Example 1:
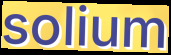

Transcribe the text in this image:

solium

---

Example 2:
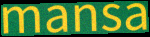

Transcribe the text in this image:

mansa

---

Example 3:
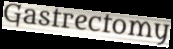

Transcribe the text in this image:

Gastrectomy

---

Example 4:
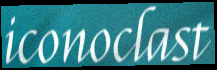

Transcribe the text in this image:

iconoclast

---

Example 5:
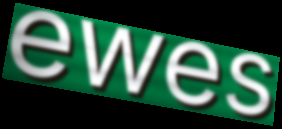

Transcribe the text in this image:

ewes